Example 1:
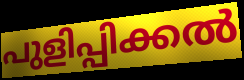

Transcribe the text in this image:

പുളിപ്പിക്കൽ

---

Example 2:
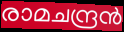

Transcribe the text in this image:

രാമചന്ദ്രൻ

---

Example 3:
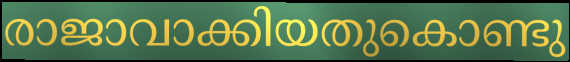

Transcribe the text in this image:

രാജാവാക്കിയതുകൊണ്ടു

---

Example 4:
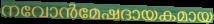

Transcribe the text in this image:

നവോൻമേഷദായകമായ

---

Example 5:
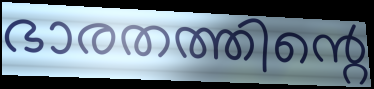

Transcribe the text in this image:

ഭാരതത്തിന്റെ